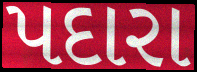
પદારા